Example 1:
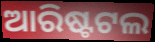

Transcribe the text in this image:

ଆରିଷ୍ଟଟଲ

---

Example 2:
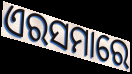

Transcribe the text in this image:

ଏରସମାରେ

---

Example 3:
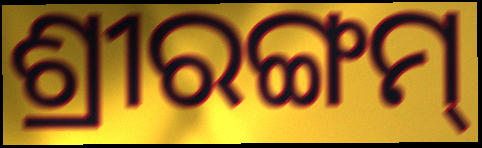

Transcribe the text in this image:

ଶ୍ରୀରଙ୍ଗମ୍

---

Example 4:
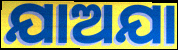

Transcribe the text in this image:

ଯାଅଯା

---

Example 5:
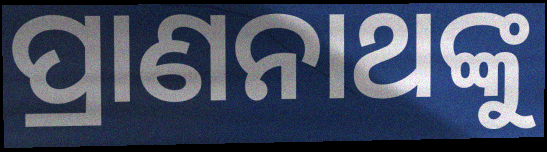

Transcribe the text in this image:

ପ୍ରାଣନାଥଙ୍କୁ